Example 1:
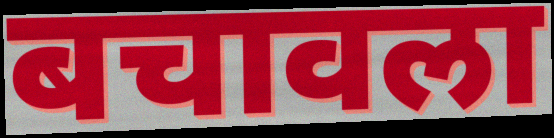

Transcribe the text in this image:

बचावला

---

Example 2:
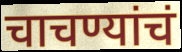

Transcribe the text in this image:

चाचण्यांचं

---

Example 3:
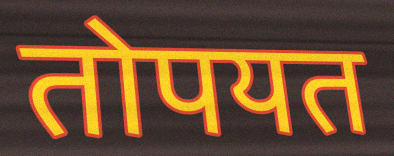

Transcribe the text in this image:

तोपयत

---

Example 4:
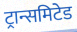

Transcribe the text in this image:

ट्रान्समिटेड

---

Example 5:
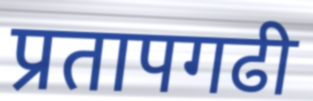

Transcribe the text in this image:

प्रतापगढी